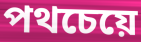
পথচেয়ে